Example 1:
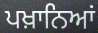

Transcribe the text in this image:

ਪਖ਼ਾਨਿਆਂ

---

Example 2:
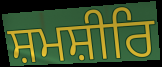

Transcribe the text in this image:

ਸ਼ਮਸ਼ੀਰਿ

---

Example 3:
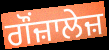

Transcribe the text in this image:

ਗੌਂਜ਼ਾਲੇਜ਼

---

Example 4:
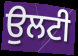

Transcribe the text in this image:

ਉਲਟੀ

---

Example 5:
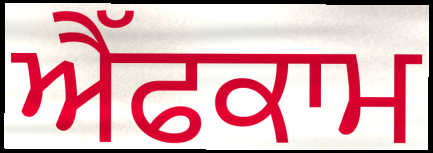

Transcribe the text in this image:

ਐੱਫਕਾਮ